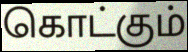
கொட்கும்